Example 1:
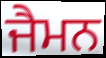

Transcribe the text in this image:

ਜੈਮਨ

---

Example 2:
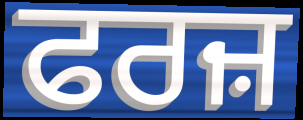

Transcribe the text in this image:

ਫਰਜ਼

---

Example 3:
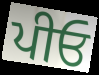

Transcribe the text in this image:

ਪੀਓ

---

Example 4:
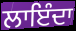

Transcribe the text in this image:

ਲਾਇੰਦਾ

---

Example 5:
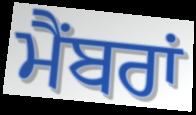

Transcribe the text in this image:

ਮੈਂਬਰਾਂ